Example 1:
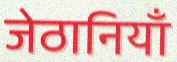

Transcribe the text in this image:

जेठानियाँ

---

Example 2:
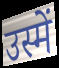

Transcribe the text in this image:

उस्में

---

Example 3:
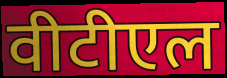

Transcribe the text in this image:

वीटीएल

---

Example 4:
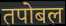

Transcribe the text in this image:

तपोबल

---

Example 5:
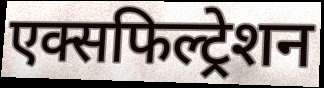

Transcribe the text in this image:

एक्सफिल्ट्रेशन